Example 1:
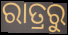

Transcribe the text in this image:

ରାତ୍ରରୁ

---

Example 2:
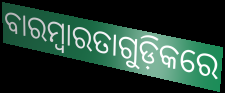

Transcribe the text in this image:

ବାରମ୍ବାରତାଗୁଡ଼ିକରେ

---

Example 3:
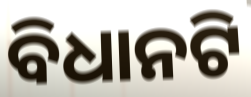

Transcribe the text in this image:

ବିଧାନଟି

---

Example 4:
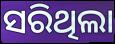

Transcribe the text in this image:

ସରିଥିଲା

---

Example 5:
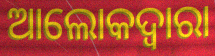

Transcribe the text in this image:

ଆଲୋକଦ୍ୱାରା